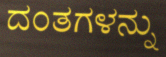
ದಂತಗಳನ್ನು